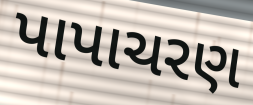
પાપાચરણ